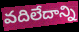
వదిలేదాన్ని